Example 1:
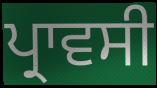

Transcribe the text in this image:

ਪ੍ਰਾਵਸੀ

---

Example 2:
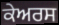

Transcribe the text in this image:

ਕੇਅਰਸ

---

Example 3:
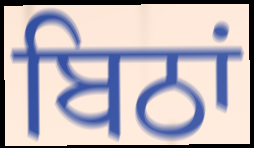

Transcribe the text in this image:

ਬਿਠਾਂ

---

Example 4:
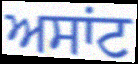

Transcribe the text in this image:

ਅਸਾਂਟ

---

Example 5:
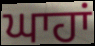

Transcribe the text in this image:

ਘਾਹਾਂ